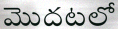
మొదటలో